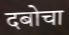
दबोचा